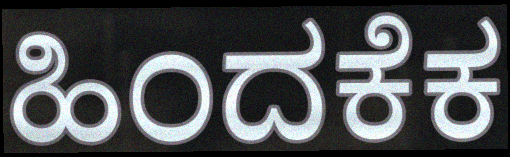
ಹಿಂದಕೆಕ